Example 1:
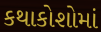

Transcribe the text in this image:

કથાકોશોમાં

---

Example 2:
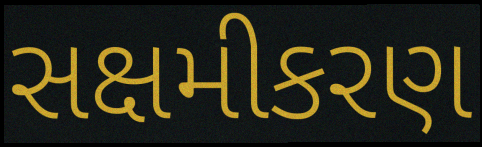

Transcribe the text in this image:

સક્ષમીકરણ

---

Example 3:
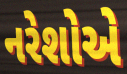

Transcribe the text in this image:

નરેશોએ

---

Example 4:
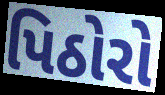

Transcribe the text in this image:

પિઠોરો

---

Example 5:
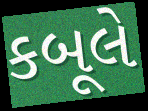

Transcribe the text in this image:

કબૂલે